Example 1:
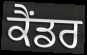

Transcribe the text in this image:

ਕੈਂਡਰ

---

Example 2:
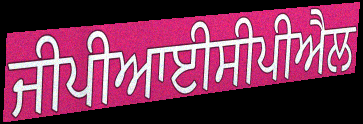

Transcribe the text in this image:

ਜੀਪੀਆਈਸੀਪੀਐਲ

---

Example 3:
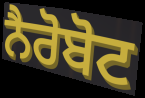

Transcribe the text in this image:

ਨੈਰੋਬੋਟ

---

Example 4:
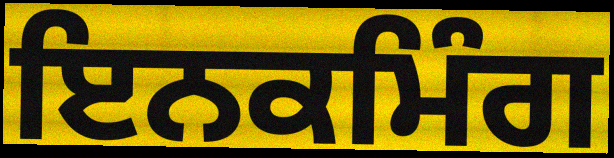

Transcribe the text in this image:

ਇਨਕਮਿੰਗ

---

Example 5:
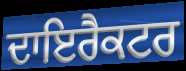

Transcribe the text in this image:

ਦਾਇਰੈਕਟਰ